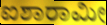
ಐಶಾರಾಮೀ